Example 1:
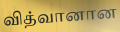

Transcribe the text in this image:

வித்வானான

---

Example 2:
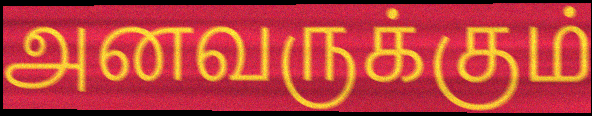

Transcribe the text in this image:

அனவருக்கும்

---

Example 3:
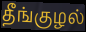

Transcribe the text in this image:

தீங்குழல்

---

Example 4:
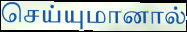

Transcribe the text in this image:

செய்யுமானால்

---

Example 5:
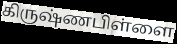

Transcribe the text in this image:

கிருஷ்ணபிள்ளை